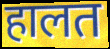
हालत